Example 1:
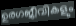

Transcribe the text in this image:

ഉരഗജീവികളും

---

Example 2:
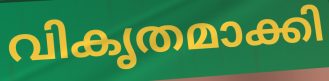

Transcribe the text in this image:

വികൃതമാക്കി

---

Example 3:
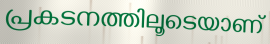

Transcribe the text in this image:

പ്രകടനത്തിലൂടെയാണ്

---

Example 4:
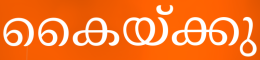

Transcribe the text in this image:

കൈയ്ക്കു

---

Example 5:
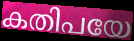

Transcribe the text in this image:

കതിപയേ